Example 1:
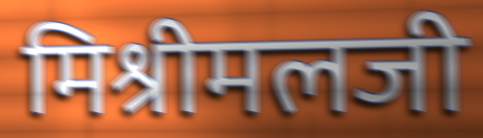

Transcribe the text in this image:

मिश्रीमलजी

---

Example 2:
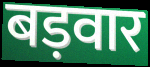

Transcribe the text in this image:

बड़वार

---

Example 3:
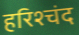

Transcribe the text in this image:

हरिश्चंद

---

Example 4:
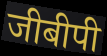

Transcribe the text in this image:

जीबीपी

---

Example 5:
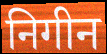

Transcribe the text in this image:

निगीन